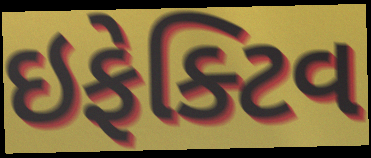
ઇફેક્ટિવ